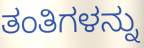
ತಂತಿಗಳನ್ನು